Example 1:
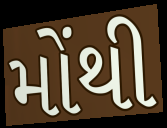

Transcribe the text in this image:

મોંથી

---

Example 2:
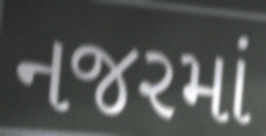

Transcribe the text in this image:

નજરમાં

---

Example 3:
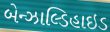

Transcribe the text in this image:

બેન્ઝાલ્ડિહાઇડ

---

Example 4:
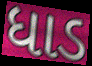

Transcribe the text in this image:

ધાડ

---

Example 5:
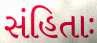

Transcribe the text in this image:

સંહિતાઃ